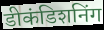
डीकंडिशनिंग